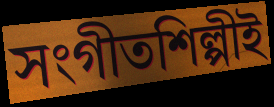
সংগীতশিল্পীই